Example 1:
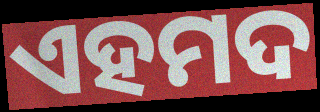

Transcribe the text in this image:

ଏହମଦ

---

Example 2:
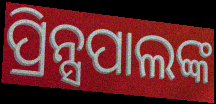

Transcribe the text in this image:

ପ୍ରିନ୍ସପାଲଙ୍କ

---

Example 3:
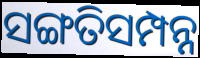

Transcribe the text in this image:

ସଙ୍ଗତିସମ୍ପନ୍ନ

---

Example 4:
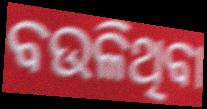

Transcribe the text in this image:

ବଉଳିଥିବା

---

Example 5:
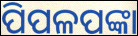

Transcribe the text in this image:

ପିପଳପଙ୍କା